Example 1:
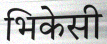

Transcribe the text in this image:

भिकेसी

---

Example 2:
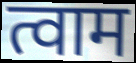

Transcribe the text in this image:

त्वाम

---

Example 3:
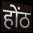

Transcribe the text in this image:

होंठ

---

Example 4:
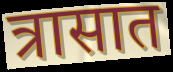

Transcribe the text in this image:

त्रासात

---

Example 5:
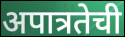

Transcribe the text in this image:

अपात्रतेची